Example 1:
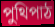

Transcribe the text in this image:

পুথিপাঠ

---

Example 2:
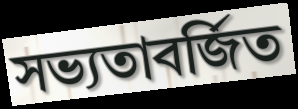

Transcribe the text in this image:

সভ্যতাবর্জিত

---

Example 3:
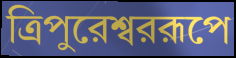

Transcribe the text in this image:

ত্রিপুরেশ্বররূপে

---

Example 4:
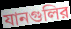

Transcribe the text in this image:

যানগুলির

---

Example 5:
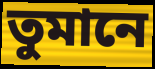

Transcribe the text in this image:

তুমানে